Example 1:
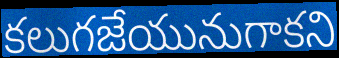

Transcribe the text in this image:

కలుగజేయునుగాకని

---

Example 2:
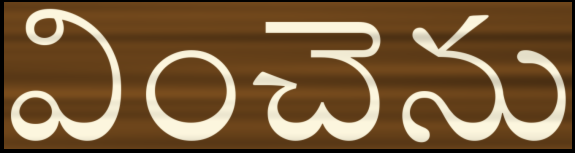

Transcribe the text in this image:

వించెను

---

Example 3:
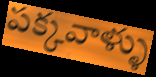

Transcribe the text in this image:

పక్కవాళ్ళు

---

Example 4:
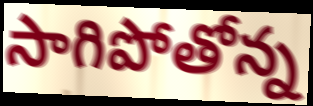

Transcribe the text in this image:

సాగిపోతోన్న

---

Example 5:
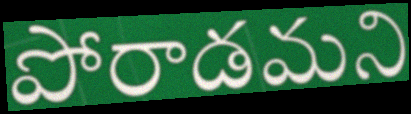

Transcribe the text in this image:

పోరాడమని